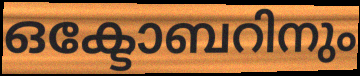
ഒക്ടോബറിനും